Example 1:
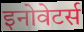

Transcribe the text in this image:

इनोवेटर्स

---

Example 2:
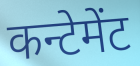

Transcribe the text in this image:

कन्टेमेंट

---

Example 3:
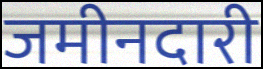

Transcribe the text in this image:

जमीनदारी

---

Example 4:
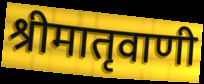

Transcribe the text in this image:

श्रीमातृवाणी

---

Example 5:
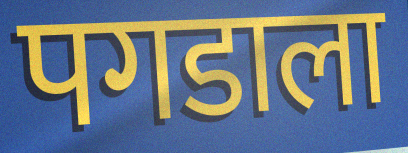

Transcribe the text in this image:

पगडाला